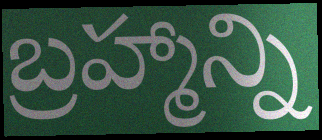
బ్రహ్మాన్ని